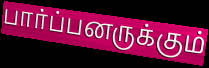
பார்ப்பனருக்கும்